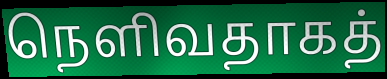
நெளிவதாகத்